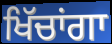
ਖਿੱਚਾਂਗਾ